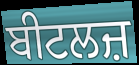
ਬੀਟਲਜ਼